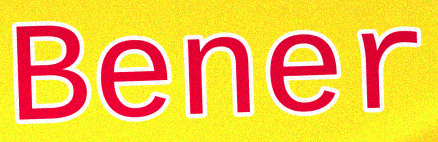
Bener